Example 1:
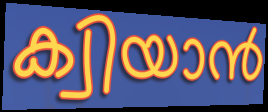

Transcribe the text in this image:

ക്വിയാൻ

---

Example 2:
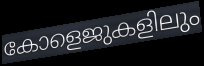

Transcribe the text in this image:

കോളെജുകളിലും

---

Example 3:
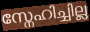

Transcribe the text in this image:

സ്നേഹിച്ചില്ല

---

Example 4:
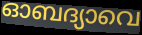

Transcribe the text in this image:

ഓബദ്യാവെ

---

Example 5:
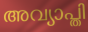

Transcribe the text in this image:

അവ്യാപ്തി